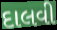
દાલવી